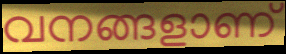
വനങ്ങളാണ്